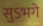
सुऽभगे